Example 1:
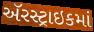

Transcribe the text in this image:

ઍરસ્ટ્રાઇકમાં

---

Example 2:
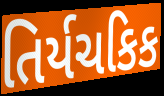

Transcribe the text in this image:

તિર્યચકિક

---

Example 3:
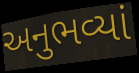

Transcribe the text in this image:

અનુભવ્યાં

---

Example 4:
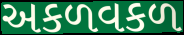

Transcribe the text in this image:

અકળવકળ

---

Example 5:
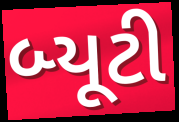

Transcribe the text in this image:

બ્યૂટી